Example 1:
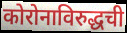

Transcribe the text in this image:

कोरोनाविरुद्धची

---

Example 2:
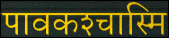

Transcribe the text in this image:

पावकश्चास्मि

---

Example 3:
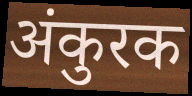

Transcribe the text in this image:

अंकुरक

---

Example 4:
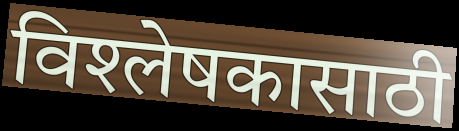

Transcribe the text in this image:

विश्लेषकासाठी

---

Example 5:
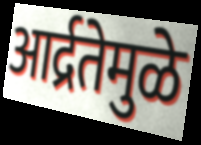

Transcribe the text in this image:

आर्द्रतेमुळे